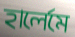
হার্লেমে